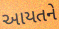
આયતને